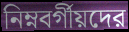
নিম্নবর্গীয়দের